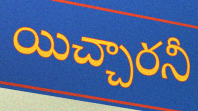
యిచ్చారనీ